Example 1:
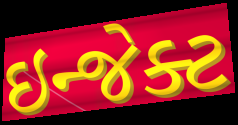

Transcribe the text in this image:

ઇન્જેક્ટ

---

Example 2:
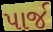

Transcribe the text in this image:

પાર્જ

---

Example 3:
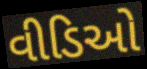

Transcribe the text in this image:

વીડિઓ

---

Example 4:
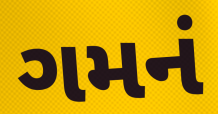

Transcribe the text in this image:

ગમનં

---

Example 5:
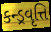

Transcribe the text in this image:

કન્ડ્રવૃત્તિ